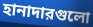
হানাদারগুলো